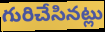
గురిచేసినట్లు